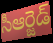
సీఆర్జెడ్